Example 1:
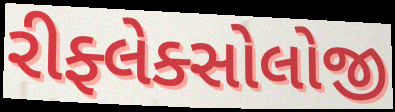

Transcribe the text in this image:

રીફ્લેક્સોલોજી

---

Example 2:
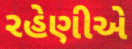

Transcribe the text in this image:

રહેણીએ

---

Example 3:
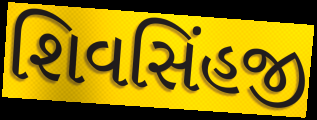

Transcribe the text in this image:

શિવસિંહજી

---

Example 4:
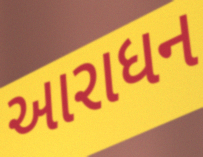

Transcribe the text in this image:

આરાધન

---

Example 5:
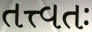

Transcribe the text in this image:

તત્ત્વતઃ